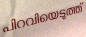
പിറവിയെടുത്ത്